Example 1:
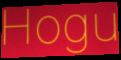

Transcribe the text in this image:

Hogu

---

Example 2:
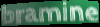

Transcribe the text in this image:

bramine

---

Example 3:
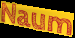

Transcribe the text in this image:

Naum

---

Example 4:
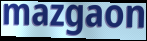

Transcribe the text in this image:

mazgaon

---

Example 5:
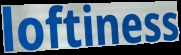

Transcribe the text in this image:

loftiness